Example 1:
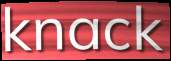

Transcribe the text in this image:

knack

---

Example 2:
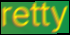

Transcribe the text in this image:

retty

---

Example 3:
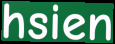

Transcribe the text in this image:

hsien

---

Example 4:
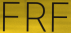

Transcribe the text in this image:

FRF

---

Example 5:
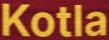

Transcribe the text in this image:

Kotla